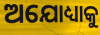
ଅଯୋଧ୍ୟାକୁ